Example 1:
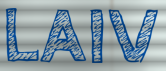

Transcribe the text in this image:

LAIV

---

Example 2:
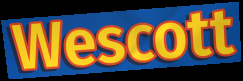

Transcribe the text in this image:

Wescott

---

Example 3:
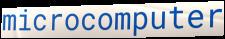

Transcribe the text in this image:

microcomputer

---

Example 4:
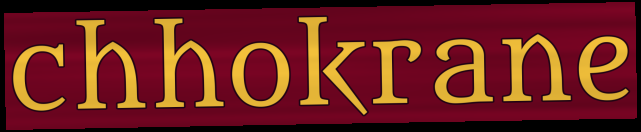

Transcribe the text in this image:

chhokrane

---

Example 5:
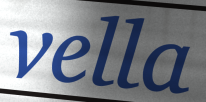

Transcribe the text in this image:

vella